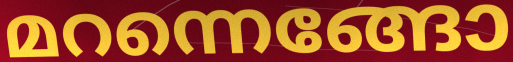
മറന്നെങ്ങോ